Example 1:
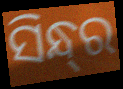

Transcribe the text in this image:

ସିନ୍ଧ୍‌ର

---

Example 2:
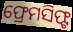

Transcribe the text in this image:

ଫ୍ରେମସିଫ୍ଟ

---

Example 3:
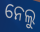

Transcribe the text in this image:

ନେଲୁ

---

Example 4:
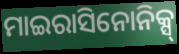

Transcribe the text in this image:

ମାଇରାସିନୋନିକ୍ସ୍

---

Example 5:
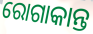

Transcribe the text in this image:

ରୋଗାକାନ୍ତ